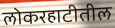
लोकरहाटीतील